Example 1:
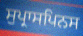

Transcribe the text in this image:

ਸੁਪ੍ਰਾਸਪਿਨਸ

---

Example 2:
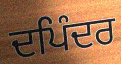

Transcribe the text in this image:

ਦਪਿੰਦਰ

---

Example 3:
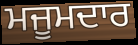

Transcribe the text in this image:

ਮਜੂਮਦਾਰ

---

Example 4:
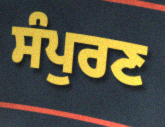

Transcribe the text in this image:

ਸੰਪੁਰਣ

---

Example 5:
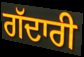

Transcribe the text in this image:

ਗੱਦਾਰੀ